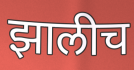
झालीच